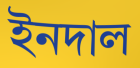
ইনদাল